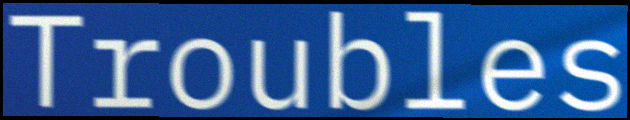
Troubles